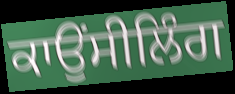
ਕਾਉਂਸੀਲਿੰਗ